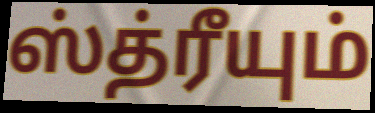
ஸ்த்ரீயும்